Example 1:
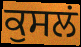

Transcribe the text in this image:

ਕੁਸਲਂ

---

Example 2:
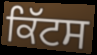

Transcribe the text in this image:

ਕਿੱਟਸ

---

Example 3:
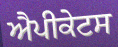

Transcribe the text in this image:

ਐਪੀਕੇਟਸ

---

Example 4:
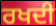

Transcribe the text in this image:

ਰਖਦੀ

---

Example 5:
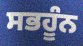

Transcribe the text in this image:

ਸਭਹੂੰਨ